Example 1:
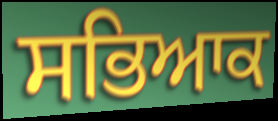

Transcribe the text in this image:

ਸਭਿਆਕ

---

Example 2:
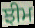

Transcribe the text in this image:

ਝੀਮ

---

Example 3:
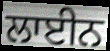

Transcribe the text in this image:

ਲਾਈਨ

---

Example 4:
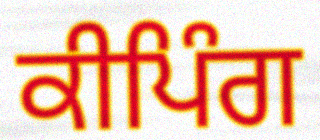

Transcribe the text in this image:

ਕੀਪਿੰਗ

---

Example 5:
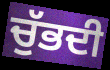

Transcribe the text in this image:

ਚੁੱਭਦੀ